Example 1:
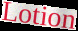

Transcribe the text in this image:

Lotion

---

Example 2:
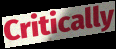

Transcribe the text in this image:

Critically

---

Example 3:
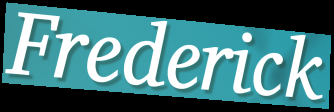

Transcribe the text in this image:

Frederick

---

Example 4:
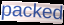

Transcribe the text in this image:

packed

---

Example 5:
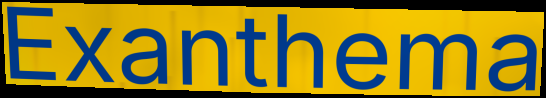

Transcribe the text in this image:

Exanthema